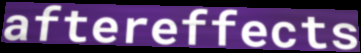
aftereffects